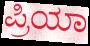
ಪ್ರಿಯಾ